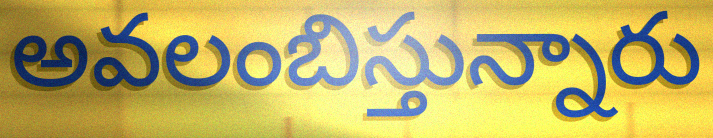
అవలంబిస్తున్నారు